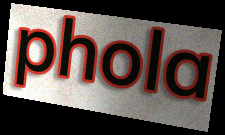
phola